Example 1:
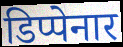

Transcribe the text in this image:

डिप्पेनार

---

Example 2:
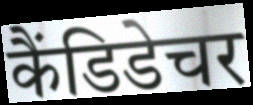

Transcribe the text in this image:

कैंडिडेचर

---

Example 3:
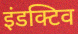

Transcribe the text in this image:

इंडक्टिव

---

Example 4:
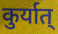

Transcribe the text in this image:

कुर्यात्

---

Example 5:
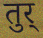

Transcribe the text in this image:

तुर्